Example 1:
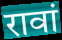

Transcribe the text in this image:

रावां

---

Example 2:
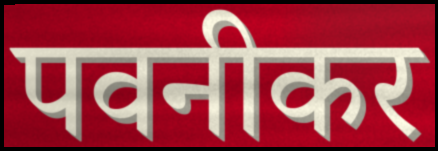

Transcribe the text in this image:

पवनीकर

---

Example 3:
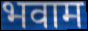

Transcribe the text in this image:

भवाम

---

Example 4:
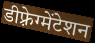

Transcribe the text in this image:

डीफ़्रेग्मेंटेशन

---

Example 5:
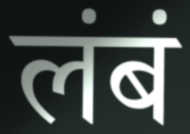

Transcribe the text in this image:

लंबं